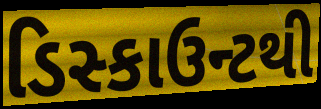
ડિસ્કાઉન્ટથી